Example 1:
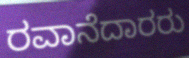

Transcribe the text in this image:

ರವಾನೆದಾರರು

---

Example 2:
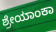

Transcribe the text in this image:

ಶ್ರೇಯಾಂಕಾ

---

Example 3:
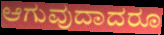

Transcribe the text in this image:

ಆಗುವುದಾದರೂ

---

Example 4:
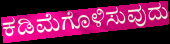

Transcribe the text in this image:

ಕಡಿಮೆಗೊಳಿಸುವುದು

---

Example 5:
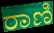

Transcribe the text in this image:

ರಾಣಿ